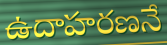
ఉదాహరణనే